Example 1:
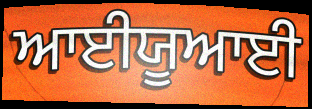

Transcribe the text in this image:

ਆਈਯੂਆਈ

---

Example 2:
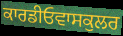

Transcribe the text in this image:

ਕਾਰਡੀਓਵਾਸਕੁਲਰ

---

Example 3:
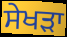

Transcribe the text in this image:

ਸੇਖੜਾ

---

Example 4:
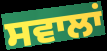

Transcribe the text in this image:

ਸਵਾਲਾਂ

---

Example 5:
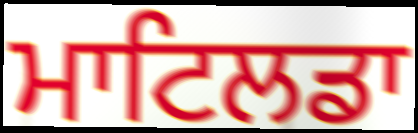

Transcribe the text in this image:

ਮਾਟਿਲਡਾ